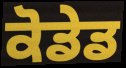
ਕੋਡੇਡ